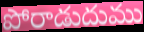
పోరాడుదుము